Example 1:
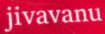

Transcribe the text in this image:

jivavanu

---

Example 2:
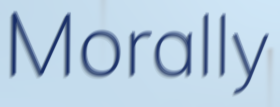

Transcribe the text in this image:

Morally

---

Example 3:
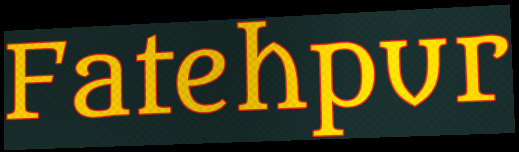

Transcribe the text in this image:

Fatehpur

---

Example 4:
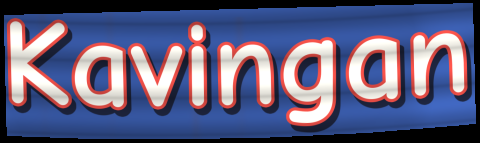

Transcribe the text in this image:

Kavingan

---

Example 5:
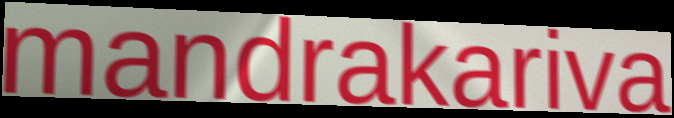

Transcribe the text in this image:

mandrakariva